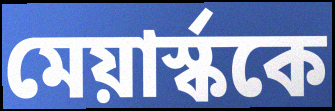
মেয়ার্স্ককে